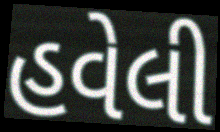
હવેલી